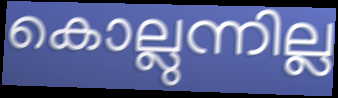
കൊല്ലുന്നില്ല